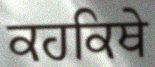
ਕਹਕਿਥੇ